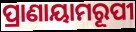
ପ୍ରାଣାୟାମରୂପୀ